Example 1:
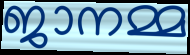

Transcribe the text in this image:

ജാനമ്മ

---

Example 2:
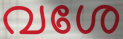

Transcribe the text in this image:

വശേ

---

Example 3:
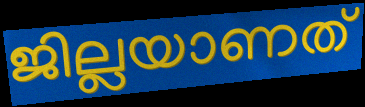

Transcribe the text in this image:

ജില്ലയാണത്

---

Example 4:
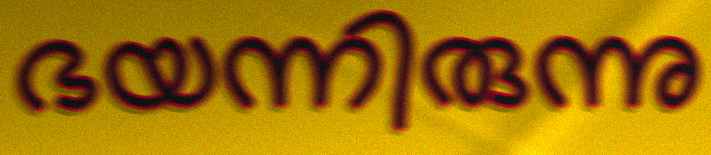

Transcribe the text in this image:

ഭയന്നിരുന്നു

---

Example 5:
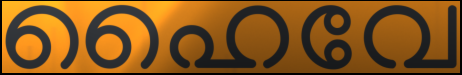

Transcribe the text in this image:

ഹൈവേ